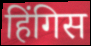
हिंगिस